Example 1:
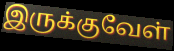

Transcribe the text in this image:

இருக்குவேள்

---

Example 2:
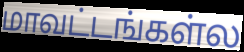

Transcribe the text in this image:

மாவட்டங்கள்ல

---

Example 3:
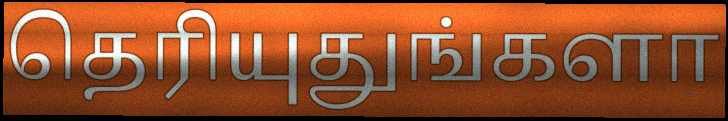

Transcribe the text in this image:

தெரியுதுங்களா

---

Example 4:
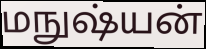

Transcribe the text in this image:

மநுஷ்யன்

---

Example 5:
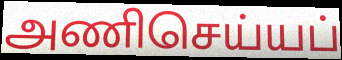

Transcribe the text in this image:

அணிசெய்யப்